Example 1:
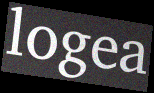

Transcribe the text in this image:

logea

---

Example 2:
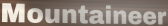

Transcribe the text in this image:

Mountaineer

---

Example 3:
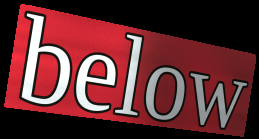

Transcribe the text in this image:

below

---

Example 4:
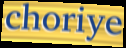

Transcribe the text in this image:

choriye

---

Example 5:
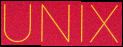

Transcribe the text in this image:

UNIX